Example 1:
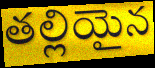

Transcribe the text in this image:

తల్లియైన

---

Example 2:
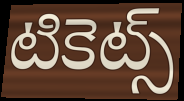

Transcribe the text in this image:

టికెట్స్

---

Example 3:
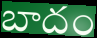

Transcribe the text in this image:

బాదం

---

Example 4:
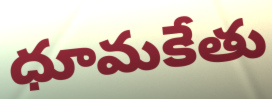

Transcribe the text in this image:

ధూమకేతు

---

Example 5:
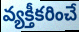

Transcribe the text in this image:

వ్యక్తీకరించే